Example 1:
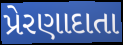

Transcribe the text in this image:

પ્રેરણાદાતા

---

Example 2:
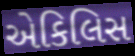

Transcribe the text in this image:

એકિલિસ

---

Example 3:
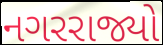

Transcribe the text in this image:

નગરરાજ્યો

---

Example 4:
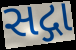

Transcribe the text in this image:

સદ્ગા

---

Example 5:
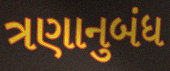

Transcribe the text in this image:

ત્રણાનુબંધ